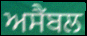
ਅਸੈਂਬਲ